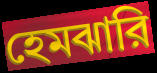
হেমঝারি